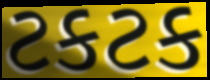
ટકટક